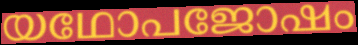
യഥോപജോഷം